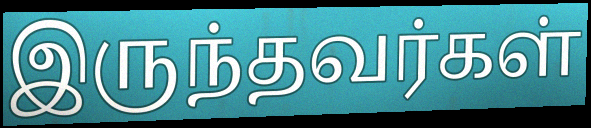
இருந்தவர்கள்